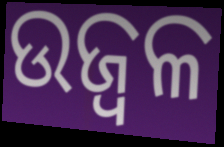
ଉଜ୍ବଳ